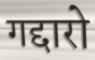
गद्दारो